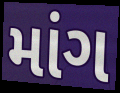
માંગ